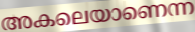
അകലെയാണെന്ന